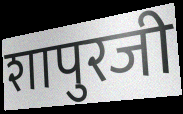
शापुरजी